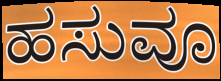
ಹಸುವೂ